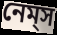
নেম্‌স